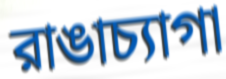
রাঙাচ্যাগা